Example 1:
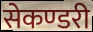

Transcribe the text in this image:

सेकण्‍डरी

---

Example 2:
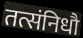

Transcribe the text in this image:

तत्संनिधौ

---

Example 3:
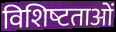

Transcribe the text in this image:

विशिष्‍टताओं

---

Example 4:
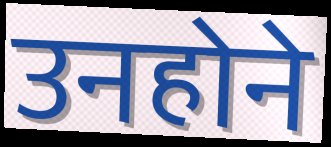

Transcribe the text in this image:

उनहोने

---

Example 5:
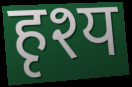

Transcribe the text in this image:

हृश्य